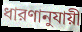
ধারণানুযায়ী